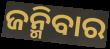
ଜନ୍ମିବାର